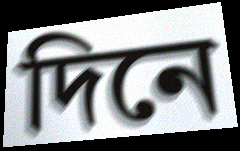
দিনে